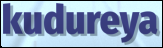
kudureya